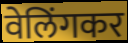
वेलिंगकर